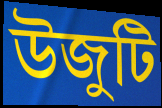
উজুটি